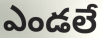
ఎండలే